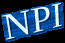
NPI